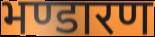
भण्डारण